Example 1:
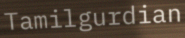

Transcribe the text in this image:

Tamilgurdian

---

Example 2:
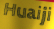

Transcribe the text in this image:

Huaiji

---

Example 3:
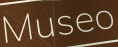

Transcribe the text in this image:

Museo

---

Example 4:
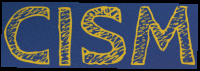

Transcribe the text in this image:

CISM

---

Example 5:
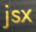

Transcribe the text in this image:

jsx